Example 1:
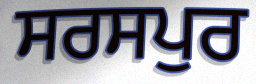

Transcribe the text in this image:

ਸਰਸਪੁਰ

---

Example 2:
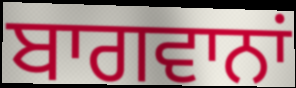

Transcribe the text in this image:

ਬਾਗਵਾਨਾਂ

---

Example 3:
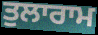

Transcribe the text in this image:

ਤੁਲਾਰਾਮ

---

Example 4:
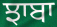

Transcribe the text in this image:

ਝਾਬਾ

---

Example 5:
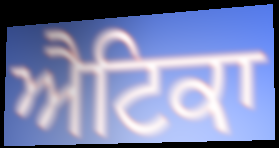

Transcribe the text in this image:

ਐਟਿਕਾ